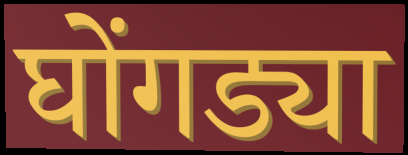
घोंगड्या